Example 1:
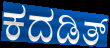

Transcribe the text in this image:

ಕದಡಿತ್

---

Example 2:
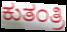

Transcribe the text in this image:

ಕುತಂತ್ರಿ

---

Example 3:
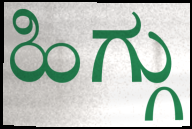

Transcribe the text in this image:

ಹಿಗ್ಗು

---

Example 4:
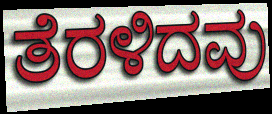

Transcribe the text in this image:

ತೆರಳಿದವು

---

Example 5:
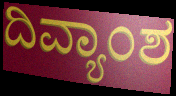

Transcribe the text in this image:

ದಿವ್ಯಾಂಶ